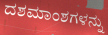
ದಶಮಾಂಶಗಳನ್ನು